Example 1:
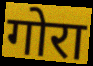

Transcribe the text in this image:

गोरा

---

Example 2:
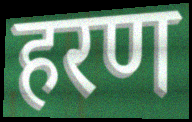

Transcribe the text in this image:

हरण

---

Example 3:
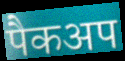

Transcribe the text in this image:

पैकअप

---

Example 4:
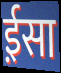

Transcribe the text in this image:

ई़सा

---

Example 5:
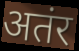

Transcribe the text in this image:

अतंर